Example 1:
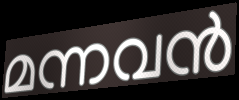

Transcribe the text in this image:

മന്നവൻ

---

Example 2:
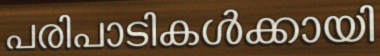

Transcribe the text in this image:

പരിപാടികൾക്കായി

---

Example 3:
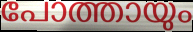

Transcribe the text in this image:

പോത്തായും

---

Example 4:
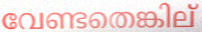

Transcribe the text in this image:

വേണ്ടതെങ്കില്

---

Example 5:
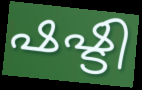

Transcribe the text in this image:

ഷഷ്ടി